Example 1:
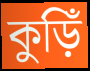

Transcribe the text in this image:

কুড়িঁ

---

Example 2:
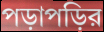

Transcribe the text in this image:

পড়াপড়ির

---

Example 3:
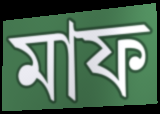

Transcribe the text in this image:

মাফ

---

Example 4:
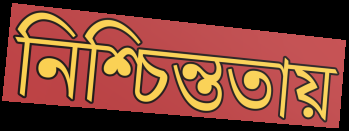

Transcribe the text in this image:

নিশ্চিন্ততায়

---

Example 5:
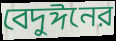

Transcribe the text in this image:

বেদুঈনের